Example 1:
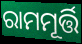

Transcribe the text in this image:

ରାମମୂର୍ତ୍ତି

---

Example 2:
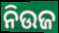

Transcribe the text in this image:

ନିଉଜ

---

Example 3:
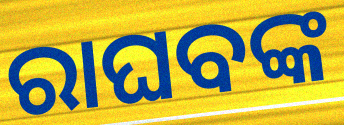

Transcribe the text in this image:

ରାଘବଙ୍କ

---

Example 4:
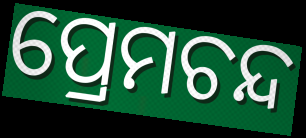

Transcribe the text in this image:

ପ୍ରେମଚନ୍ଦ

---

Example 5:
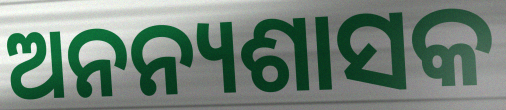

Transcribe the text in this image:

ଅନନ୍ୟଶାସକ